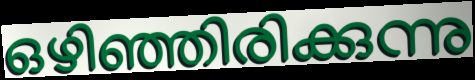
ഒഴിഞ്ഞിരിക്കുന്നു